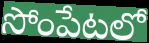
సోంపేటలో